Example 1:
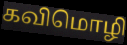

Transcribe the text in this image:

கவிமொழி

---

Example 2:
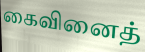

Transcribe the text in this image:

கைவினைத்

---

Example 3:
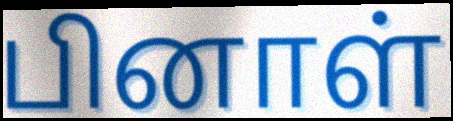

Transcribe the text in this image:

பினாள்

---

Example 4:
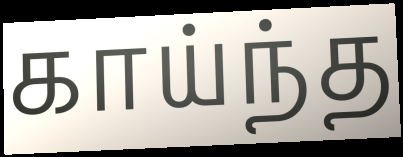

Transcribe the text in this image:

காய்ந்த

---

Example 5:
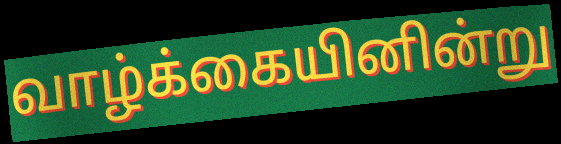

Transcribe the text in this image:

வாழ்க்கையினின்று